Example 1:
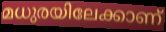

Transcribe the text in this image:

മധുരയിലേക്കാണ്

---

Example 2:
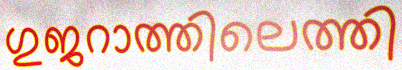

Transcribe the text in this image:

ഗുജറാത്തിലെത്തി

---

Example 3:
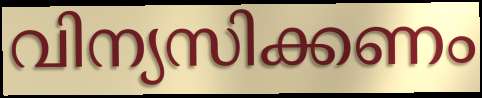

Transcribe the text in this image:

വിന്യസിക്കണം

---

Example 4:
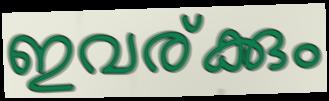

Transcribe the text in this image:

ഇവര്ക്കും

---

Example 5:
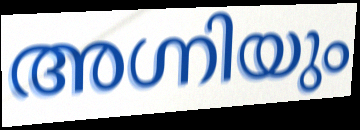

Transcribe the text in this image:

അഗ്നിയും